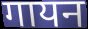
गायन